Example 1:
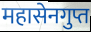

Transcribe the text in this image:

महासेनगुप्त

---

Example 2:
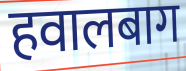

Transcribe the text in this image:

हवालबाग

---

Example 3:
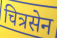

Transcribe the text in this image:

चित्रसेन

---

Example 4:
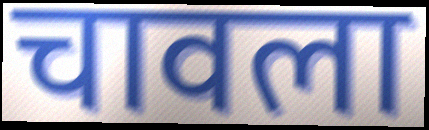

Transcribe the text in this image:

चावला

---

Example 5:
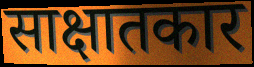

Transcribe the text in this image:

साक्षातकार